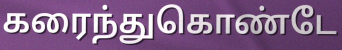
கரைந்துகொண்டே